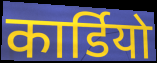
कार्डियो